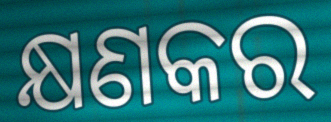
କ୍ଷଣକର